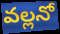
వల్లనో